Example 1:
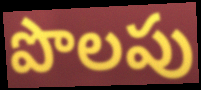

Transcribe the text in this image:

పొలపు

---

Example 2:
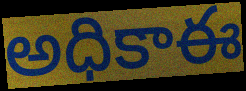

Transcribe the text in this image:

అధికాఈ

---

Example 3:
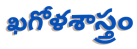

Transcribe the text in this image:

ఖగోళశాస్త్రం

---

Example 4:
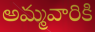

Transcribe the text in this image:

అమ్మవారికి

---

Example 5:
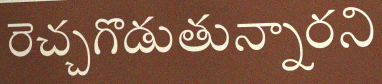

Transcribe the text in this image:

రెచ్చగొడుతున్నారని